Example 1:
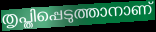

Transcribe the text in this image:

തൃപ്തിപ്പെടുത്താനാണ്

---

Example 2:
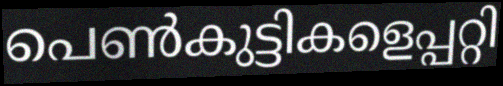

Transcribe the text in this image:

പെൺകുട്ടികളെപ്പറ്റി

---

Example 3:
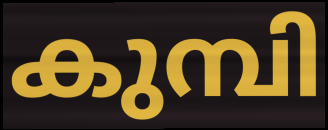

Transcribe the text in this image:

കുമ്പി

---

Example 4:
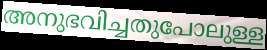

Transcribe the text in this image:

അനുഭവിച്ചതുപോലുള്ള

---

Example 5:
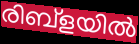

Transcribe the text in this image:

രിബ്ളയിൽ